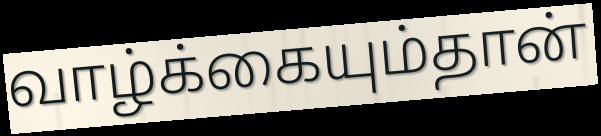
வாழ்க்கையும்தான்